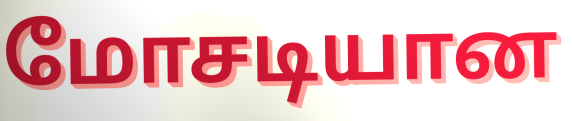
மோசடியான